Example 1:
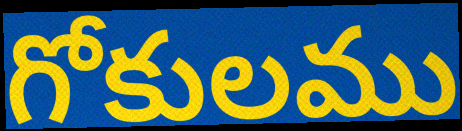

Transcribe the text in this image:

గోకులము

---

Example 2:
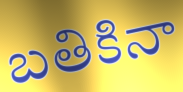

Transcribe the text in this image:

బతికినా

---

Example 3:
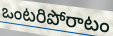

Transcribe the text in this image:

ఒంటరిపోరాటం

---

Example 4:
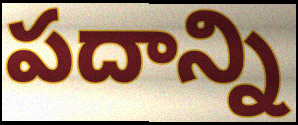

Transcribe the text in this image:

పదాన్ని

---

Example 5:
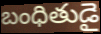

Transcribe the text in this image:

బంధితుడై